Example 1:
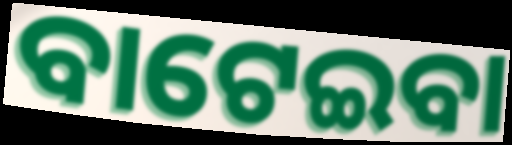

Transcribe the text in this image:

ବାଟେଇବା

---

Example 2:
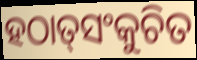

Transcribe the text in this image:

ହଠାତ୍‌ସଂକୁଚିତ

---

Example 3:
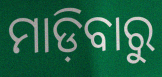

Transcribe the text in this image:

ମାଡ଼ିବାରୁ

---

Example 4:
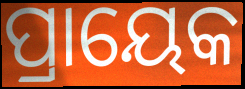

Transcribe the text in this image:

ପ୍ରାୟେକ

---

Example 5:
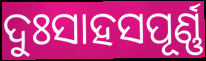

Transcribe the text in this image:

ଦୁଃସାହସପୂର୍ଣ୍ଣ